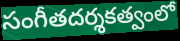
సంగీతదర్శకత్వంలో